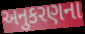
અનુકરણના